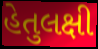
હેતુલક્ષી